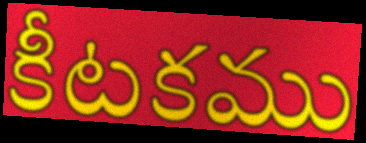
కీటకము